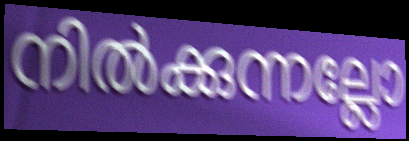
നിൽക്കുന്നല്ലോ